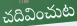
చదివించుట